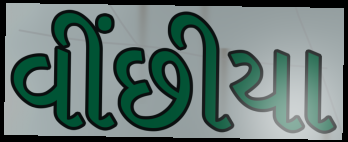
વીંછીયા